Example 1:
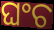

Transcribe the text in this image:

ଘଂଚ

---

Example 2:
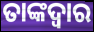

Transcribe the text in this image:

ତାଙ୍କଦ୍ୱାର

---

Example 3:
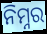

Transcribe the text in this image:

ନିମ୍ନର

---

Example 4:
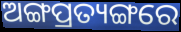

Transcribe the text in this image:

ଅଙ୍ଗପ୍ରତ୍ୟଙ୍ଗରେ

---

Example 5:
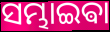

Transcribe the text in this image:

ସମ୍ଭାଇଵା